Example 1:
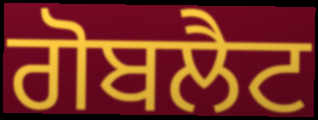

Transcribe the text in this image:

ਗੋਬਲੈਟ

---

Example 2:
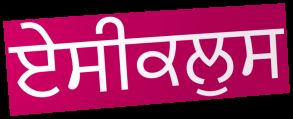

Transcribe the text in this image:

ਏਸੀਕਲੁਸ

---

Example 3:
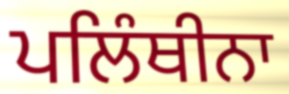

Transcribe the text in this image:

ਪਲਿੰਥੀਨਾ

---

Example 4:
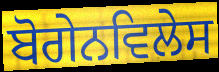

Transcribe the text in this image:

ਬੋਗੇਨਵਿਲੇਸ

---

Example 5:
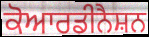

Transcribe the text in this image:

ਕੋਆਰਡੀਨੈਸ਼ਨ